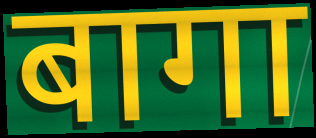
बागा